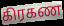
கிரகண